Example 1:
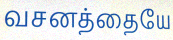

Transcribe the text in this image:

வசனத்தையே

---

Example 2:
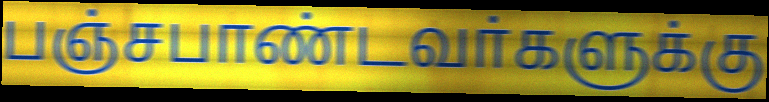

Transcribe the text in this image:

பஞ்சபாண்டவர்களுக்கு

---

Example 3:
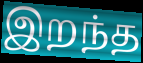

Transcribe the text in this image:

இறந்த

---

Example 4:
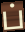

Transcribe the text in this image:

ப்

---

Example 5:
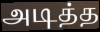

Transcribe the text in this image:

அடித்த